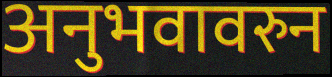
अनुभवावरुन